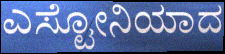
ಎಸ್ಟೋನಿಯಾದ